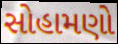
સોહામણો